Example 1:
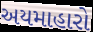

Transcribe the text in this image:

અયમાહારો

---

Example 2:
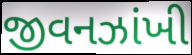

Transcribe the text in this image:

જીવનઝાંખી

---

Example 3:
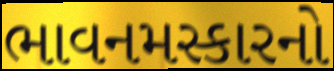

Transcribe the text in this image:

ભાવનમસ્કારનો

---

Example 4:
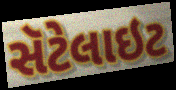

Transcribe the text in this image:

સૅટેલાઇટ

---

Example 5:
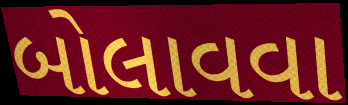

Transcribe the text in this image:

બોલાવવા